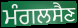
ਮੰਗਲਸੈਣ